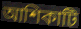
আশিকাটি